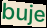
buje